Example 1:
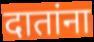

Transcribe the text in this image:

दातांना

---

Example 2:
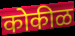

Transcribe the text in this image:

कोकीळ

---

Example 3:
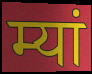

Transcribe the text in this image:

म्यां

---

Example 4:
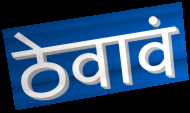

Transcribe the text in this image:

ठेवावं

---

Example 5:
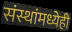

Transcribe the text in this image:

संस्थांमध्येही